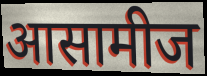
आसामीज